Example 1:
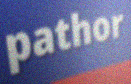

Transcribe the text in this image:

pathor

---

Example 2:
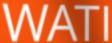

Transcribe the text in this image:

WATI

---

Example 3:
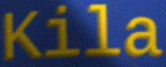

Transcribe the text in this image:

Kila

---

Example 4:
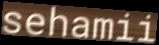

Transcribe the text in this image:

sehamii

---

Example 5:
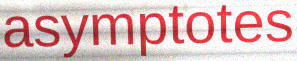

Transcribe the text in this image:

asymptotes